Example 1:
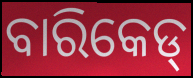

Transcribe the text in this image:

ବାରିକେଡ୍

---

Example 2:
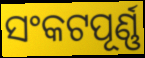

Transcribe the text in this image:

ସଂକଟପୂର୍ଣ୍ଣ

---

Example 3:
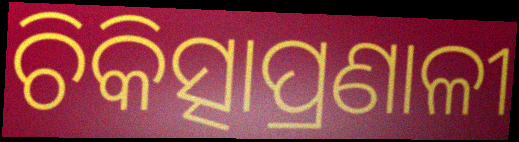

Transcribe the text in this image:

ଚିକିତ୍ସାପ୍ରଣାଳୀ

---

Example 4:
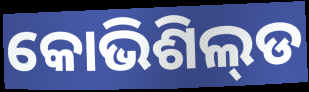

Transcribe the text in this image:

କୋଭିଶିଲ୍‌ଡ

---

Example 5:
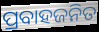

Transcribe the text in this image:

ପ୍ରବାହଜନିତ